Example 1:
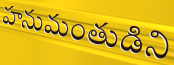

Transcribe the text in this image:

హనుమంతుడిని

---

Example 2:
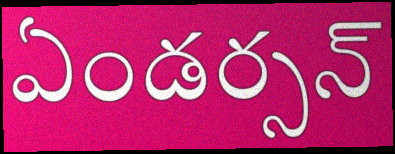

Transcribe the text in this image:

ఏండర్సన్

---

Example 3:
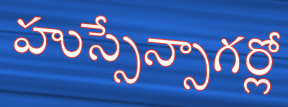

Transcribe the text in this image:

హుస్సేన్సాగర్లో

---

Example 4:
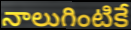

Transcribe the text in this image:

నాలుగింటికే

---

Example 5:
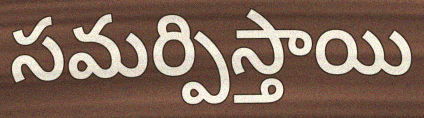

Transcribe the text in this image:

సమర్పిస్తాయి